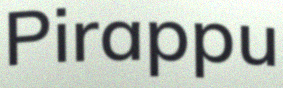
Pirappu